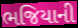
ભજિયાની